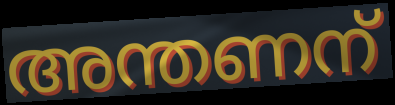
അന്തണന്